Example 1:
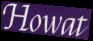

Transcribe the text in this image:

Howat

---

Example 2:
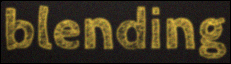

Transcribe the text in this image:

blending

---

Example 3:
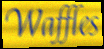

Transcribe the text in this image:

Waffles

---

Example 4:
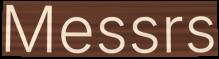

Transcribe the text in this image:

Messrs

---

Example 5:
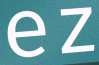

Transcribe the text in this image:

ez